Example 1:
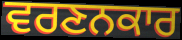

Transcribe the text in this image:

ਵਰਣਨਕਾਰ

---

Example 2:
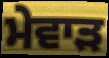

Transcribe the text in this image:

ਮੇਵਾੜ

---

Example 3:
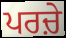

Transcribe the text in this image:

ਪਰਚ਼ੇ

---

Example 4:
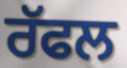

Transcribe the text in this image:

ਰੱਫਲ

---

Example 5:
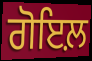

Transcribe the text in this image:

ਗੋਇਲ਼